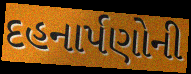
દહનાર્પણોની